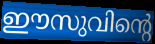
ഈസുവിന്റെ